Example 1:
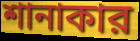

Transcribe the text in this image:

শানাকার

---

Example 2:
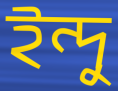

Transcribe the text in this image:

ইন্দু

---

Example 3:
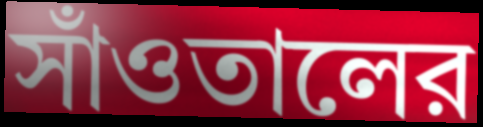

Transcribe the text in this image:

সাঁওতালের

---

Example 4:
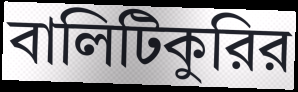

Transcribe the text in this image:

বালিটিকুরির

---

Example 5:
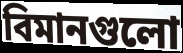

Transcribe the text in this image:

বিমানগুলো